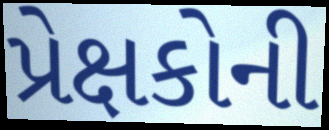
પ્રેક્ષકોની